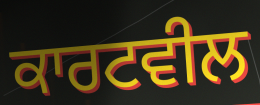
ਕਾਰਟਵੀਲ